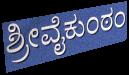
ಶ್ರೀವೈಕುಂಠಂ